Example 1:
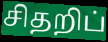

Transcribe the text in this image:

சிதறிப்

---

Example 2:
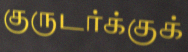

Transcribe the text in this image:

குருடர்க்குக்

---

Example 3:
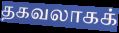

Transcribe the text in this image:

தகவலாகக்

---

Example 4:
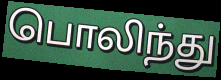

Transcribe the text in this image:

பொலிந்து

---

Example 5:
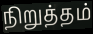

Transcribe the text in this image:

நிறுத்தம்